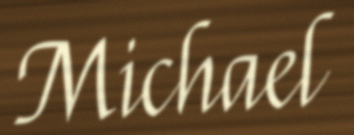
Michael